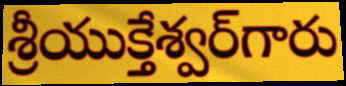
శ్రీయుక్తేశ్వర్‌గారు